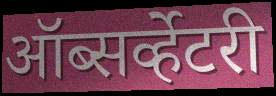
ऑब्सर्व्हेटरी